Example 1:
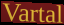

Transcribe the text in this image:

Vartal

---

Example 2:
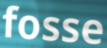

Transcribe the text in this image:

fosse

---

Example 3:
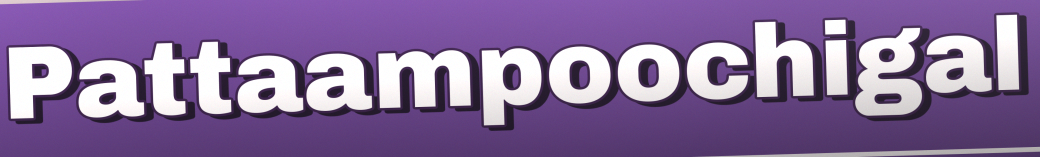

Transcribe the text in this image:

Pattaampoochigal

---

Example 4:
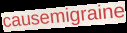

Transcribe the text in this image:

causemigraine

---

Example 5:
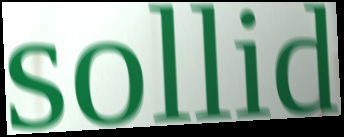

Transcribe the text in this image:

sollid